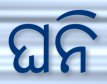
ଘନି